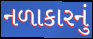
નળાકારનું